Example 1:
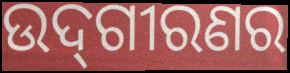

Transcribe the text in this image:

ଉଦ୍‌ଗୀରଣର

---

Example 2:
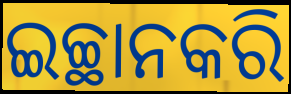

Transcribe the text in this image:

ଇଚ୍ଛାନକରି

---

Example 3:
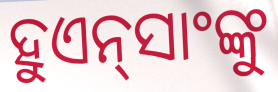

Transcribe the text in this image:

ହୁଏନ୍‌ସାଂଙ୍କୁ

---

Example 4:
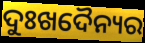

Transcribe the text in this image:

ଦୁଃଖଦୈନ୍ୟର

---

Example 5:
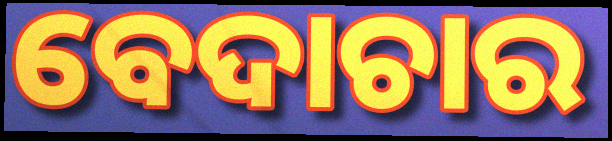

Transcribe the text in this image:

ବେଦାଚାର